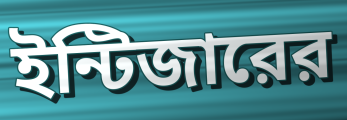
ইন্টিজারের